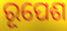
ରୂପେଶ